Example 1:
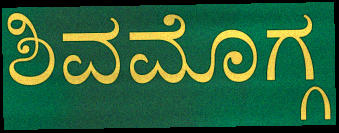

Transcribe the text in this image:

ಶಿವಮೊಗ್ಗ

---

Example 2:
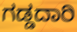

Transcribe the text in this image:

ಗಡ್ಡದಾರಿ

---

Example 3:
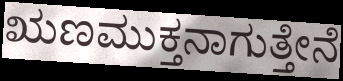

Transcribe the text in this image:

ಋಣಮುಕ್ತನಾಗುತ್ತೇನೆ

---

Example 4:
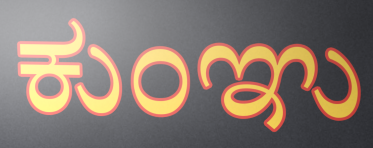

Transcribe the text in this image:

ಕುಂಞು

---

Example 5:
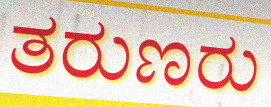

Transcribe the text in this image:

ತರುಣರು